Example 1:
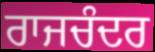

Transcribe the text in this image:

ਰਾਜਚੰਦਰ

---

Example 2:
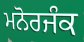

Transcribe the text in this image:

ਮਨੋਰਜੰਕ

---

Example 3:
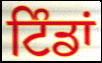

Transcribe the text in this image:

ਟਿੰਡਾਂ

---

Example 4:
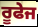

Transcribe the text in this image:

ਰੂਫੇਜ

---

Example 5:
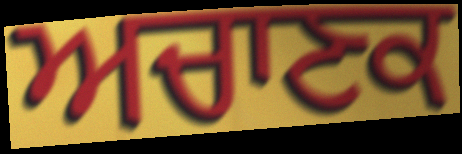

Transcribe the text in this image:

ਅਚਾਣਕ